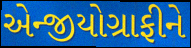
એન્જીયોગ્રાફીને